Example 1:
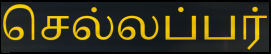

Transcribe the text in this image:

செல்லப்பர்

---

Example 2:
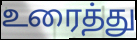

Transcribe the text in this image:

உரைத்து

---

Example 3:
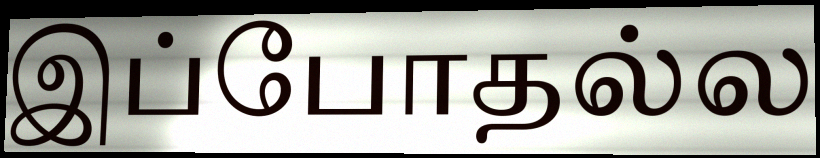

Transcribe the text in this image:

இப்போதல்ல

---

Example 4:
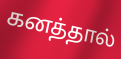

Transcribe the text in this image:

கனத்தால்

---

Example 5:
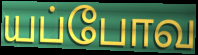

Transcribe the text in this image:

யப்போவ